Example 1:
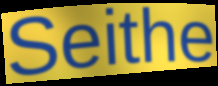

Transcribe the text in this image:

Seithe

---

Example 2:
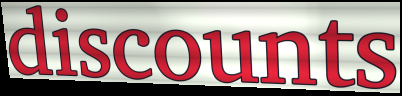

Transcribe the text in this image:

discounts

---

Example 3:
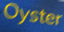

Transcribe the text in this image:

Oyster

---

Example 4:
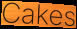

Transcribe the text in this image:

Cakes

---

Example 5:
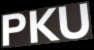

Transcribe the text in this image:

PKU